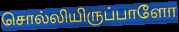
சொல்லியிருப்பாளோ